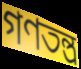
গণতন্ত্ৰ